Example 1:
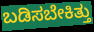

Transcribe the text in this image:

ಬಡಿಸಬೇಕಿತ್ತು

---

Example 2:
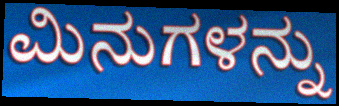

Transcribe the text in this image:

ಮಿನುಗಳನ್ನು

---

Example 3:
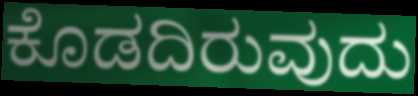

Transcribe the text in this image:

ಕೊಡದಿರುವುದು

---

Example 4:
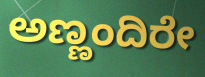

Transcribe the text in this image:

ಅಣ್ಣಂದಿರೇ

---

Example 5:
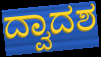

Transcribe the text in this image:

ದ್ವಾದಶ